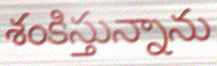
శంకిస్తున్నాను